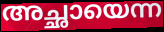
അച്ഛായെന്ന